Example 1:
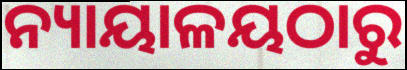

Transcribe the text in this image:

ନ୍ୟାୟାଳୟଠାରୁ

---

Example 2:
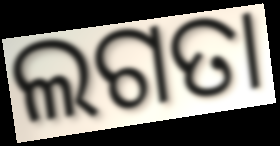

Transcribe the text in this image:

ଲଗତା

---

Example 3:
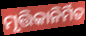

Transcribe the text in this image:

ମୃତ୍ତିକାନିର୍ମିତ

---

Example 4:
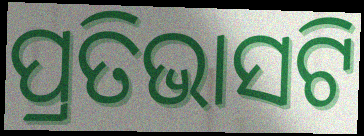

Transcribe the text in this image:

ପ୍ରତିଭାସଟି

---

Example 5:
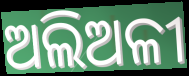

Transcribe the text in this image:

ଅଲିଅଳୀ